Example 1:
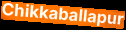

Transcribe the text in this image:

Chikkaballapur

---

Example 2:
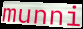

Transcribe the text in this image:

munni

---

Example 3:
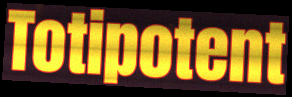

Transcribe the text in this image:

Totipotent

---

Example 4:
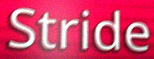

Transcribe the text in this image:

Stride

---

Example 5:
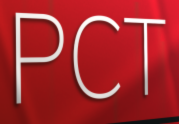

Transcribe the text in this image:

PCT